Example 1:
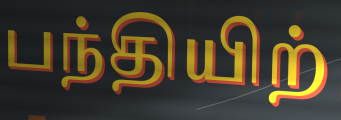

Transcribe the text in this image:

பந்தியிற்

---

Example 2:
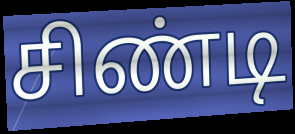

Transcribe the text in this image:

சிண்டி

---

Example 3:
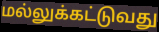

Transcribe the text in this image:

மல்லுக்கட்டுவது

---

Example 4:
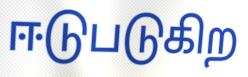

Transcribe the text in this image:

ஈடுபடுகிற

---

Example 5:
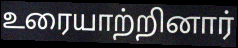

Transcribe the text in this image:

உரையாற்றினார்